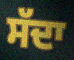
ਸੱਦਾ